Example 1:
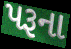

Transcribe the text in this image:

પરૂના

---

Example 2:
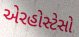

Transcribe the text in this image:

એરહોસ્ટેસો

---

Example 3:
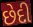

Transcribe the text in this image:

છેદી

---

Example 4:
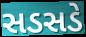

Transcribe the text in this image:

સડસડે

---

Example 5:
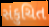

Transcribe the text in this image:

સંકુચિત